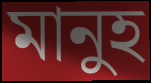
মানুহ